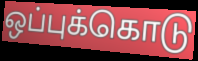
ஒப்புக்கொடு